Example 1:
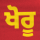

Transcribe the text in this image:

ਖੋਰੂ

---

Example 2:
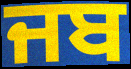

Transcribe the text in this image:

ਜਬ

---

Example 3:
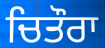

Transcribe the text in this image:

ਚਿਤੌਰਾ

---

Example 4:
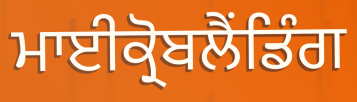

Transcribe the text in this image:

ਮਾਈਕ੍ਰੋਬਲੈਂਡਿੰਗ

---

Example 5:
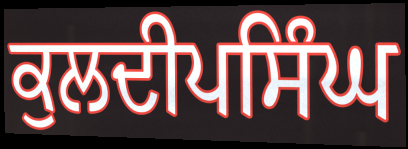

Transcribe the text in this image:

ਕੁਲਦੀਪਸਿੰਘ